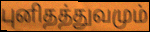
புனிதத்துவமும்